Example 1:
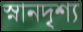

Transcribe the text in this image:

স্নানদৃশ্য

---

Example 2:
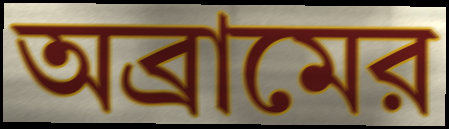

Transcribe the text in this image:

অব্রামের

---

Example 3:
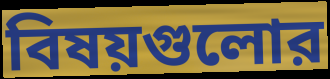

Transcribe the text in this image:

বিষয়গুলোর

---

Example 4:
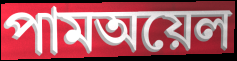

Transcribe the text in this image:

পামঅয়েল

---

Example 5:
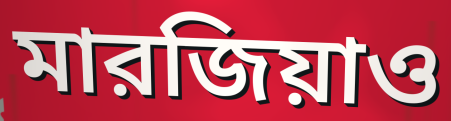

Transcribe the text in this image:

মারজিয়াও